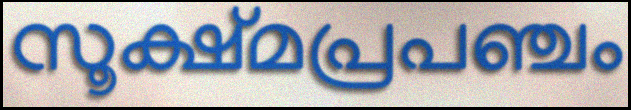
സൂക്ഷ്മപ്രപഞ്ചം